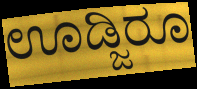
ಊಡ್ಜಿರೂ